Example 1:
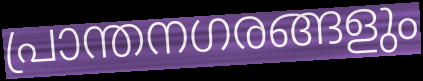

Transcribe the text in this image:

പ്രാന്തനഗരങ്ങളും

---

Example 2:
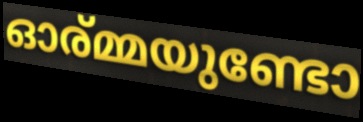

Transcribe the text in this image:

ഓര്മ്മയുണ്ടോ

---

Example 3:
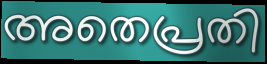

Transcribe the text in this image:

അതെപ്രതി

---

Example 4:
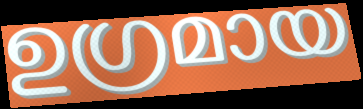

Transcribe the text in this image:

ഉഗ്രമായ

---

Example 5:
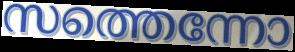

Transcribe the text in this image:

സത്തെന്നോ